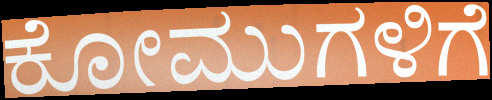
ಕೋಮುಗಳಿಗೆ